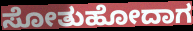
ಸೋತುಹೋದಾಗ